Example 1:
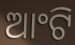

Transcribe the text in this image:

ଆଂଟି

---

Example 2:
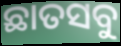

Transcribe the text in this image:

ଛାତସବୁ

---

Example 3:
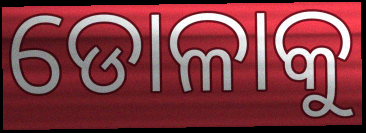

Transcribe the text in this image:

ଡୋଳାକୁ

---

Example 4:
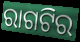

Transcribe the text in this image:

ରାଗଟିର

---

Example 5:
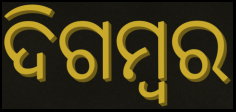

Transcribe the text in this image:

ଦିଗମ୍ବର